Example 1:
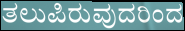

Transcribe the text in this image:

ತಲುಪಿರುವುದರಿಂದ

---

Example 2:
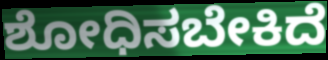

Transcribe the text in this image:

ಶೋಧಿಸಬೇಕಿದೆ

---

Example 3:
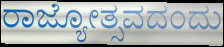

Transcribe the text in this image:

ರಾಜ್ಯೋತ್ಸವದಂದು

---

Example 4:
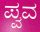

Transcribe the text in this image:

ಪ್ವವ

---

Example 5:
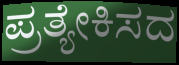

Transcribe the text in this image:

ಪ್ರತ್ಯೇಕಿಸದ